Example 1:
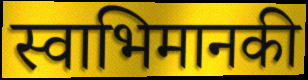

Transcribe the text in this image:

स्वाभिमानकी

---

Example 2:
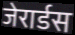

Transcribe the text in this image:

जेरार्डस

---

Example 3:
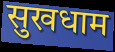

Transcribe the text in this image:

सुखधाम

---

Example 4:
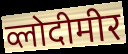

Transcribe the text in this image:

व्लोदीमीर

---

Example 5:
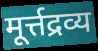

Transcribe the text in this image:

मूर्त्तद्रव्य